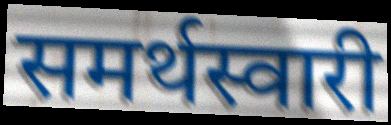
समर्थस्वारी